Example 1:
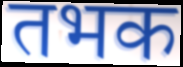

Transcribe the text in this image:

तभक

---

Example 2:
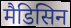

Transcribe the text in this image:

मैडिसिन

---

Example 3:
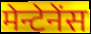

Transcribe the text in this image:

मेन्टेनेंस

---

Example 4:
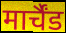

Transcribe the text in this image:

मार्चैंड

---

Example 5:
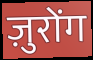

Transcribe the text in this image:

ज़ुरोंग